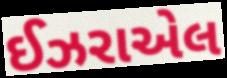
ઈઝરાએલ